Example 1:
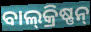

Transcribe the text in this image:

ବାଲ୍‍କ୍ରିଷ୍ଣନ୍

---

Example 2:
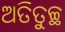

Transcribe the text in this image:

ଅତିତୁଚ୍ଛ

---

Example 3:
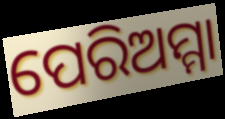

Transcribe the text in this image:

ପେରିଅମ୍ମା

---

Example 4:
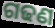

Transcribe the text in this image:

ଗଢଣ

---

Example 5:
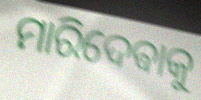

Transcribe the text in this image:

ମାରିଦେଵାକୁ